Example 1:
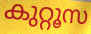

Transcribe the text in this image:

കുറ്റൂസ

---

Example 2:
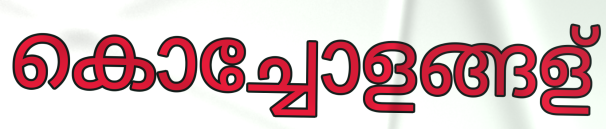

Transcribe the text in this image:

കൊച്ചോളങ്ങള്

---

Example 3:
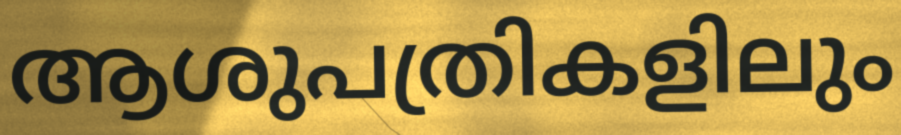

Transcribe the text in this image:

ആശുപത്രികളിലും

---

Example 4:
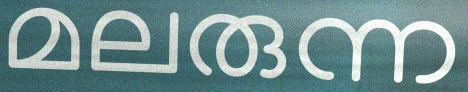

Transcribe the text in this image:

മലരുന്ന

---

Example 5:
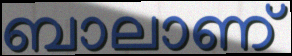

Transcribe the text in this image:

ബാലാണ്